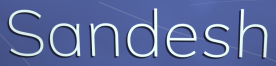
Sandesh